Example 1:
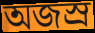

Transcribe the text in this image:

অজস্র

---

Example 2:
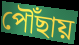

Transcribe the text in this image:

পৌঁছায়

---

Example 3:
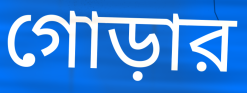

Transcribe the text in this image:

গোড়ার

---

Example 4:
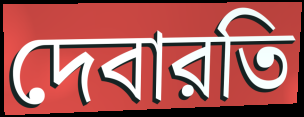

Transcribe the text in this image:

দেবারতি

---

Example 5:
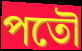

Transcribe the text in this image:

পতৌ